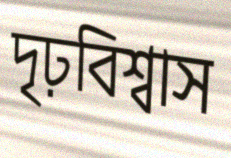
দৃঢ়বিশ্বাস